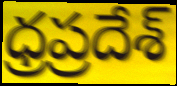
ధ్రప్రదేశ్